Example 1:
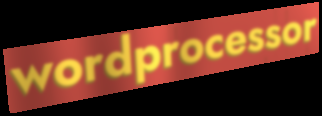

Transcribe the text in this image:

wordprocessor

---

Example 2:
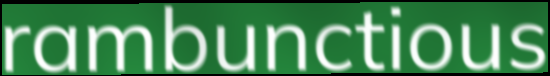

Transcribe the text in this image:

rambunctious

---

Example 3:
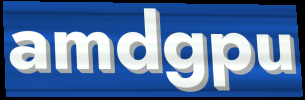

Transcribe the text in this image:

amdgpu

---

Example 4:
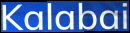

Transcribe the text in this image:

Kalabai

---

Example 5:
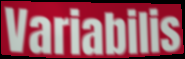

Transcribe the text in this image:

Variabilis